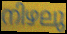
നിഴലു